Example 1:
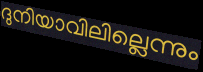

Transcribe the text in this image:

ദുനിയാവിലില്ലെന്നും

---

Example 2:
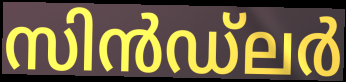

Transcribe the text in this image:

സിൻഡ്ലർ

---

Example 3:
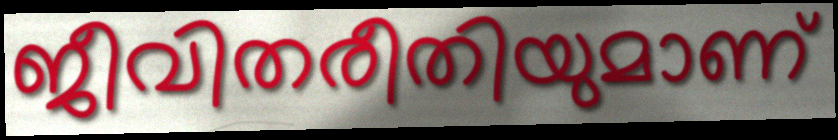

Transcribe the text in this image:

ജീവിതരീതിയുമാണ്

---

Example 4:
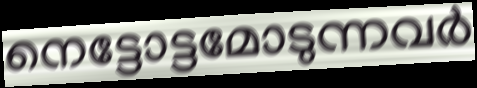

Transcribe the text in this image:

നെട്ടോട്ടമോടുന്നവർ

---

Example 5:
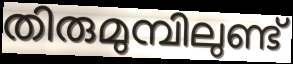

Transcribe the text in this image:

തിരുമുമ്പിലുണ്ട്